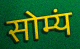
सोम्यं